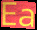
Ea